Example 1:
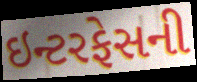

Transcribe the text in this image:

ઇન્ટરફેસની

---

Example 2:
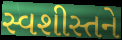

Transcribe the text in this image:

સ્વશીસ્તને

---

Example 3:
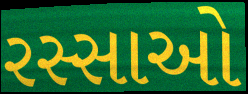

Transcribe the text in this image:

રસ્સાઓ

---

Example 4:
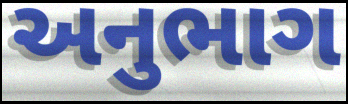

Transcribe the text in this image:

અનુભાગ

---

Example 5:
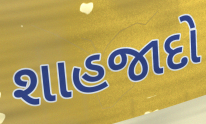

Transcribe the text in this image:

શાહજાદો